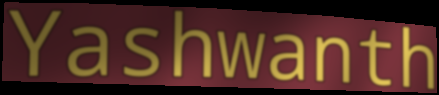
Yashwanth